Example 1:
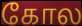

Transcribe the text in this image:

கோல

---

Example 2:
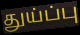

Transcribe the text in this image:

துய்ப்பு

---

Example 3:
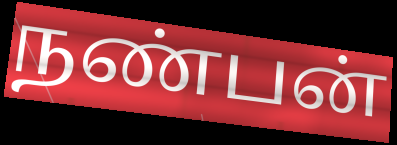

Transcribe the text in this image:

நண்பன்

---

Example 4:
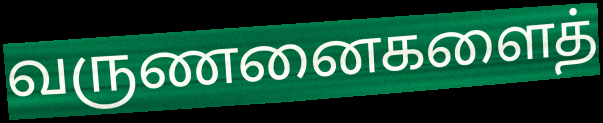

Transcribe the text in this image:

வருணனைகளைத்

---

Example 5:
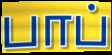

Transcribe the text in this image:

பாப்